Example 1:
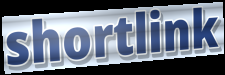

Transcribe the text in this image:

shortlink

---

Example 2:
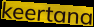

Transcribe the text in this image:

keertana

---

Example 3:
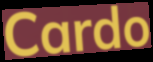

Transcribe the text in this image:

Cardo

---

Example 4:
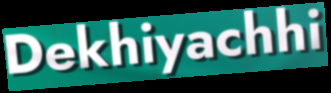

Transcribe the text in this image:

Dekhiyachhi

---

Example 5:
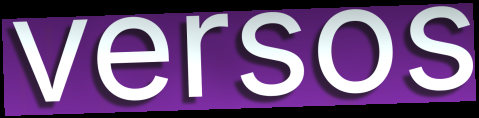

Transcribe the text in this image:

versos